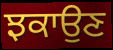
ਝਕਾਉਣ